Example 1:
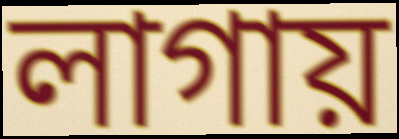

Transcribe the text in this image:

লাগায়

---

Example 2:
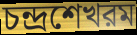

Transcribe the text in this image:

চন্দ্রশেখরম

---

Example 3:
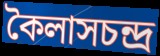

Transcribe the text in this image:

কৈলাসচন্দ্র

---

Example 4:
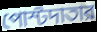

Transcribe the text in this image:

পোস্টদাতার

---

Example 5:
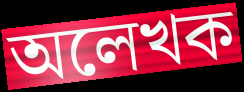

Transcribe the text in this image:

অলেখক